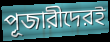
পূজারীদেরই